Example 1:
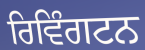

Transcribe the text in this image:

ਰਿਵਿੰਗਟਨ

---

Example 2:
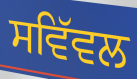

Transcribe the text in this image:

ਸਵਿੱਵਲ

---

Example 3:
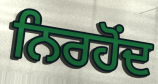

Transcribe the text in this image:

ਨਿਰਹੋਂਦ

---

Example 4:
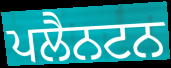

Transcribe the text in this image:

ਪਲੈਨਟਨ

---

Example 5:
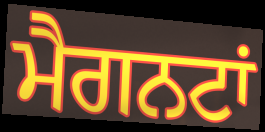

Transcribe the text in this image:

ਮੈਗਨਟਾਂ